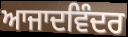
ਆਜਾਦਵਿੰਦਰ